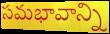
సమభావాన్ని